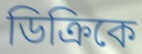
ডিক্রিকে